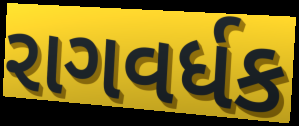
રાગવર્ધક